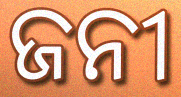
ଜନୀ